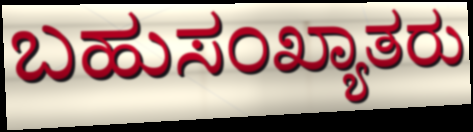
ಬಹುಸಂಖ್ಯಾತರು